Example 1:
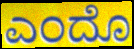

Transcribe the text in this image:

ಎಂದೊ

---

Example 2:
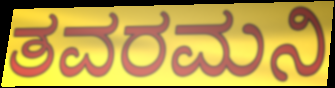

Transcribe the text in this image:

ತವರಮನಿ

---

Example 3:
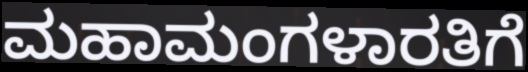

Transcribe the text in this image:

ಮಹಾಮಂಗಳಾರತಿಗೆ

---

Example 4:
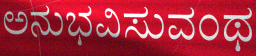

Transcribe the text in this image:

ಅನುಭವಿಸುವಂಥ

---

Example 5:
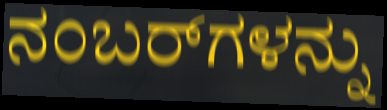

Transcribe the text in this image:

ನಂಬರ್‌ಗಳನ್ನು